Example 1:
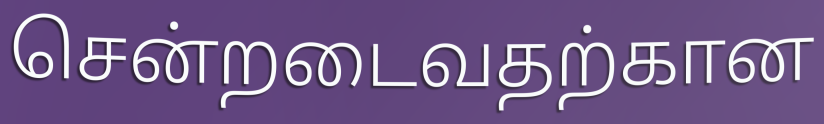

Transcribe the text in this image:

சென்றடைவதற்கான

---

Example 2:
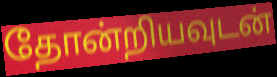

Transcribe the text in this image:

தோன்றியவுடன்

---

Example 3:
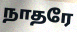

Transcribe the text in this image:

நாதரே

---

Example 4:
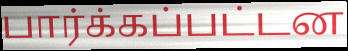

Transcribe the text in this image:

பார்க்கப்பட்டன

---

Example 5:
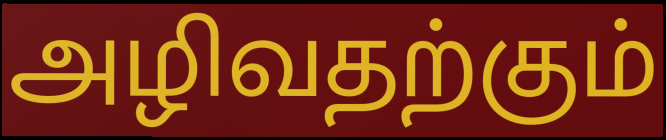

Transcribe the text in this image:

அழிவதற்கும்